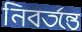
নিবর্তন্তে